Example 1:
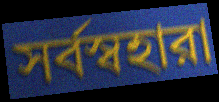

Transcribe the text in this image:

সর্বস্বহারা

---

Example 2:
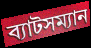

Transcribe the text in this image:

ব্যাটসম্যান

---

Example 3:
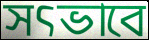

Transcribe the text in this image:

সৎভাবে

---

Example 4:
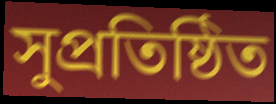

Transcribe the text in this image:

সুপ্রতিষ্ঠিত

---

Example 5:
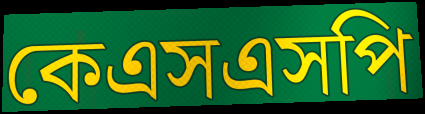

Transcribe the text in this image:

কেএসএসপি